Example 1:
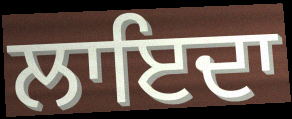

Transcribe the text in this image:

ਲਾਇਦਾ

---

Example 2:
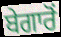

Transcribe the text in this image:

ਬੇਗਾਰੋਂ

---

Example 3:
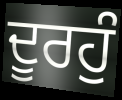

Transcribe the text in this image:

ਦੂਰਹੁੰ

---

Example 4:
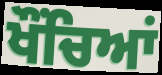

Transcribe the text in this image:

ਖੌਂਚਿਆਂ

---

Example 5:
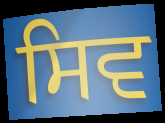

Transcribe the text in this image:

ਸਿਵ